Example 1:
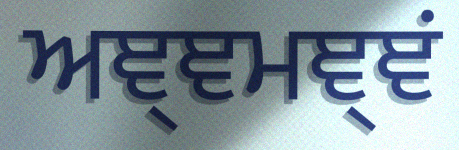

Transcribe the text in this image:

ਅਞ੍ਞਮਞ੍ਞਂ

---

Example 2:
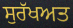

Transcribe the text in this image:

ਸੁਰੱਖਅਤ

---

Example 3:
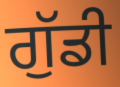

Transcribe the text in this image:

ਗੁੱਡੀ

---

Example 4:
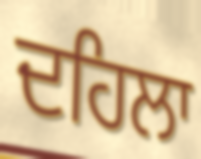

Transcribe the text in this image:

ਦਹਿਲਾ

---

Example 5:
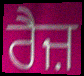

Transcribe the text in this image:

ਰੈਜ਼